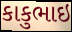
કાકુભાઇ